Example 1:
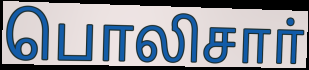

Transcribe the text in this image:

பொலிசார்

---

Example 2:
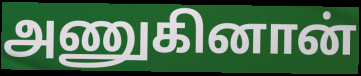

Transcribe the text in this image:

அணுகினான்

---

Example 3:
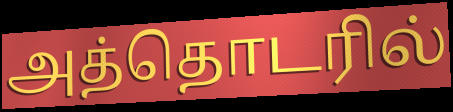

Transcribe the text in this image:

அத்தொடரில்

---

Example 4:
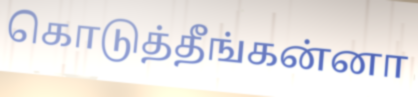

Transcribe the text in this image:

கொடுத்தீங்கன்னா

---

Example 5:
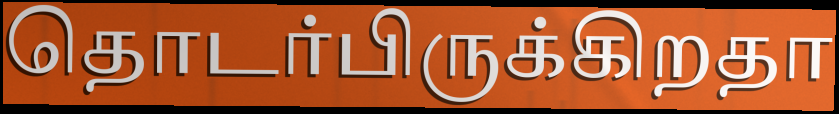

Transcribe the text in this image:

தொடர்பிருக்கிறதா